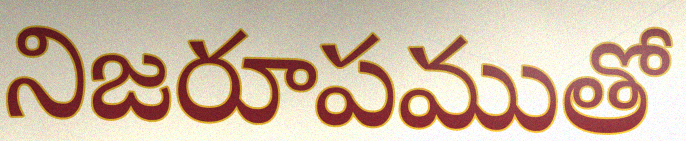
నిజరూపముతో